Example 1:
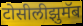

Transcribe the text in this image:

टोसीलीझुमॅब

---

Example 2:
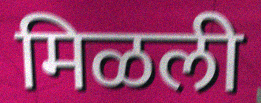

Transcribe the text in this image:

मिळली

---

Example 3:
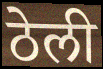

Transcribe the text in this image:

ठेली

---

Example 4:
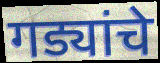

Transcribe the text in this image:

गड्यांचे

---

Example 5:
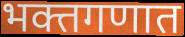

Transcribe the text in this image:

भक्तगणात